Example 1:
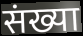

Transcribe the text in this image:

संख्या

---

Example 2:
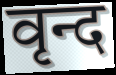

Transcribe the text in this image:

वृन्द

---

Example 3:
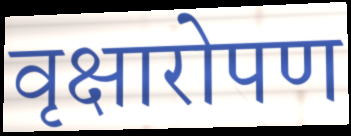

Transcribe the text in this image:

वृक्षारोपण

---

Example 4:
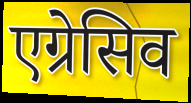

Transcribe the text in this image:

एग्रेसिव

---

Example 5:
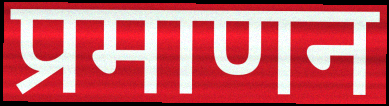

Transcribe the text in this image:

प्रमाणन